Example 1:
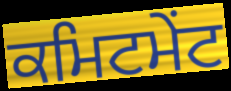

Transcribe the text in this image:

ਕਮਿਟਮੇਂਟ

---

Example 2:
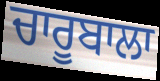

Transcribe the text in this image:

ਚਾਰੂਬਾਲਾ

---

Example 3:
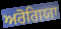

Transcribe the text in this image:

ਅਰੋਗਿਯਾ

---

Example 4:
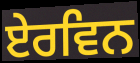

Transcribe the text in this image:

ਏਰਵਿਨ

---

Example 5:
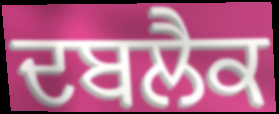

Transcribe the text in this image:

ਦਬਲੈਕ